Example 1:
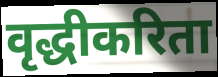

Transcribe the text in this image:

वृद्धीकरिता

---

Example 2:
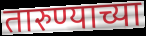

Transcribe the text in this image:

तारुण्याच्या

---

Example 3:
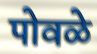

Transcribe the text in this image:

पोवळे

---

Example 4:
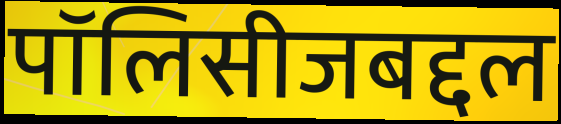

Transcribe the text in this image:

पॉलिसीजबद्दल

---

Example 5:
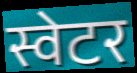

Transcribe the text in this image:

स्वेटर